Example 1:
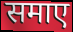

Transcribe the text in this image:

समाए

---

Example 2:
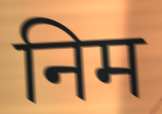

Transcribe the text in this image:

निम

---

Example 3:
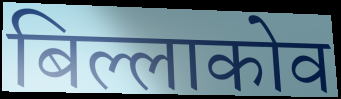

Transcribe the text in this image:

बिल्लाकोव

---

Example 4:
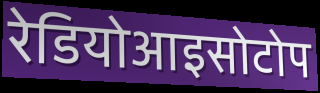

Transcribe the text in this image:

रेडियोआइसोटोप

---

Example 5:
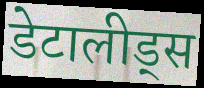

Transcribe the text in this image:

डेटालीड्स